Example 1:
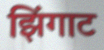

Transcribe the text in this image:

झिंगाट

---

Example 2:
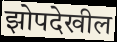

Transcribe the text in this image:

झोपदेखील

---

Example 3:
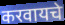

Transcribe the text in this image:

करवायचे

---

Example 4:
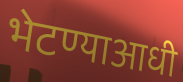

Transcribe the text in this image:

भेटण्याआधी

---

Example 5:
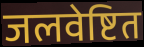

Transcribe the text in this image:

जलवेष्टित